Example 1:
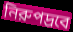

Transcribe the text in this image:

নিরুপদ্রবে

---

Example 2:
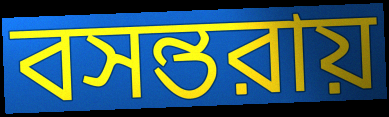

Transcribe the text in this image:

বসন্তরায়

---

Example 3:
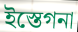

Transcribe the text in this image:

ইস্তেগনা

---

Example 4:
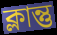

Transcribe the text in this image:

ক্লান্তু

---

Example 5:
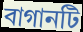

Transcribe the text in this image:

বাগানটি